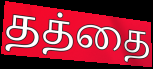
தத்தை